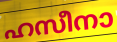
ഹസീനാ